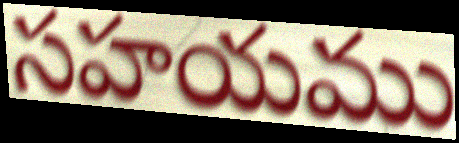
సహయము